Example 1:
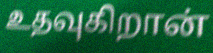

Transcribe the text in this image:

உதவுகிறான்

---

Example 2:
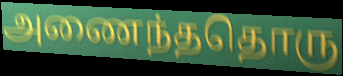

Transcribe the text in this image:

அணைந்ததொரு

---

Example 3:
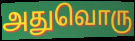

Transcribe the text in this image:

அதுவொரு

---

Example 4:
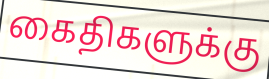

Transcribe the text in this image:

கைதிகளுக்கு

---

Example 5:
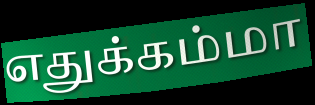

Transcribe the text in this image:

எதுக்கம்மா